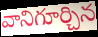
వానిగూర్చిన